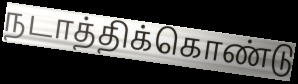
நடாத்திக்கொண்டு